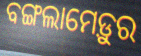
ବଙ୍ଗଲାମେଡ଼ୁର